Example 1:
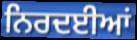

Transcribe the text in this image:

ਨਿਰਦਈਆਂ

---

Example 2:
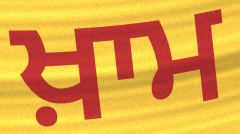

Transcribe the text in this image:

ਖ਼ਾਮ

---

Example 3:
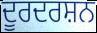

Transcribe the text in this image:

ਦੂਰਦਰਸ਼ਨ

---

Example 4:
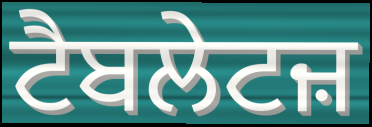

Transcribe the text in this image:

ਟੈਬਲੇਟਜ਼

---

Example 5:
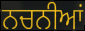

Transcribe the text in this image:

ਨਚਨੀਆਂ